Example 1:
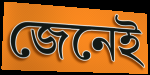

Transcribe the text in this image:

জেনেই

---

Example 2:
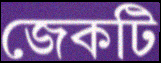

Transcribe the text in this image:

জেকটি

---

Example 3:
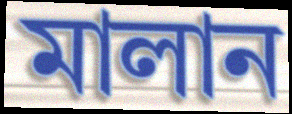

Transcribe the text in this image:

মালান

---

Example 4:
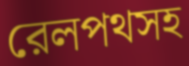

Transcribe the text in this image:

রেলপথসহ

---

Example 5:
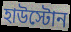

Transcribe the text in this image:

হাউস্টোন